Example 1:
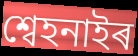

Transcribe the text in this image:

শ্বেহনাইৰ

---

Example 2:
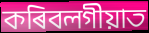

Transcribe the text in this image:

কৰিবলগীয়াত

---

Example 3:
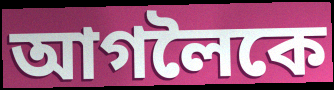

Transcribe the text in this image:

আগলৈকে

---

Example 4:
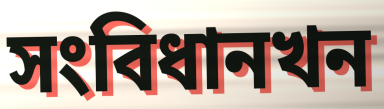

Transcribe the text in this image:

সংবিধানখন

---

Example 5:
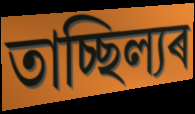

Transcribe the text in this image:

তাচ্ছিল্যৰ